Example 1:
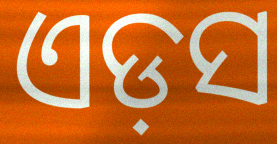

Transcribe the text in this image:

ଏଡ଼ସ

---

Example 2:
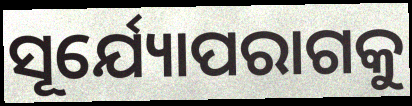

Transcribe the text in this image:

ସୂର୍ଯ୍ୟୋପରାଗକୁ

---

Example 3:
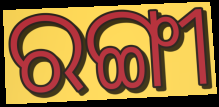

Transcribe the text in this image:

ରଙ୍ଗୀ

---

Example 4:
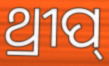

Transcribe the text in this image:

ଥ୍ରୀପ୍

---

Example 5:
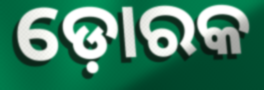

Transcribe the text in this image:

ଡ଼ୋରକ